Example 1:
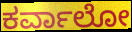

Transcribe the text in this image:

ಕರ್ವಾಲೋ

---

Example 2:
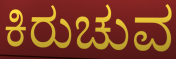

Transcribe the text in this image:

ಕಿರುಚುವ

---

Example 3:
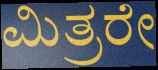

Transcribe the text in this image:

ಮಿತ್ರರೇ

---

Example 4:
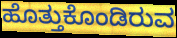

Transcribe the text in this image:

ಹೊತ್ತುಕೊಂಡಿರುವ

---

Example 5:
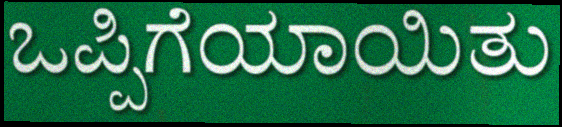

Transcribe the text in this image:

ಒಪ್ಪಿಗೆಯಾಯಿತು